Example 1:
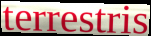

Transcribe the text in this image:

terrestris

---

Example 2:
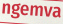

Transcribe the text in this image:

ngemva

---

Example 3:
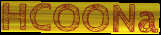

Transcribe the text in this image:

HCOONa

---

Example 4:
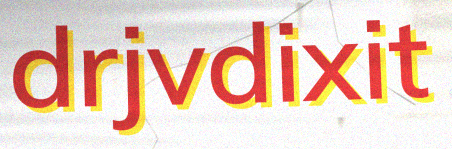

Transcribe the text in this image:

drjvdixit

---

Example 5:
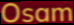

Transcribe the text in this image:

Osam